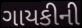
ગાયકીની